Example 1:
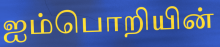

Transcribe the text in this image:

ஐம்பொறியின்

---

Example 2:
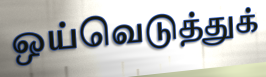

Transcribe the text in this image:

ஒய்வெடுத்துக்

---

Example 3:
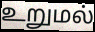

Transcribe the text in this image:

உறுமல்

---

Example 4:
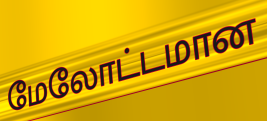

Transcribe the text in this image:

மேலோட்டமான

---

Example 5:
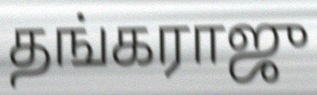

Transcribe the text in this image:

தங்கராஜு